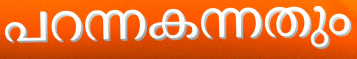
പറന്നകന്നതും